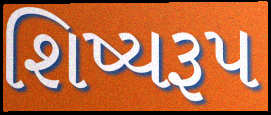
શિષ્યરૂપ